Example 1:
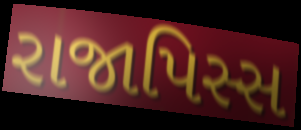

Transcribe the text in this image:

રાજાપિસ્સ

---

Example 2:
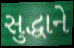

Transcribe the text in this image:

સુદ્ધાને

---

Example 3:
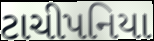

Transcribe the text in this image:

ટાચીપનિયા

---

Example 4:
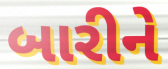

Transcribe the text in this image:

બારીને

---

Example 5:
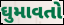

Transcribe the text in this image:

ઘુમાવતો